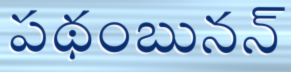
పథంబునన్